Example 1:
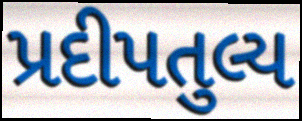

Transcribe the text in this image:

પ્રદીપતુલ્ય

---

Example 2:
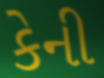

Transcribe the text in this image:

કેની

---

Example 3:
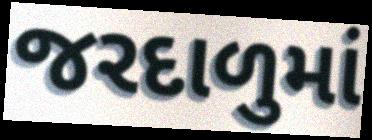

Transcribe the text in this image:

જરદાળુમાં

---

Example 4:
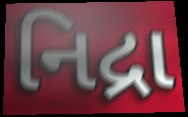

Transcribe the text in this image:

નિદ્રા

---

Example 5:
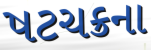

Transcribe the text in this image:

ષટચક્રના